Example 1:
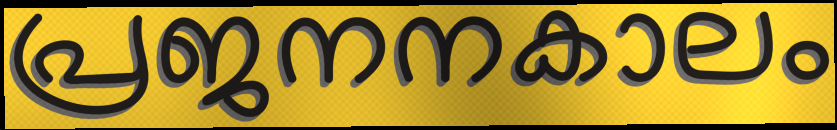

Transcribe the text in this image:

പ്രജനനകാലം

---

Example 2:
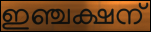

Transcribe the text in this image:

ഇഞ്ചക്ഷന്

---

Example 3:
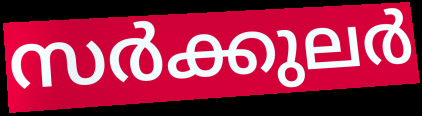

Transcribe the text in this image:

സർക്കുലർ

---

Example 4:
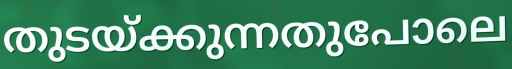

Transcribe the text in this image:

തുടയ്ക്കുന്നതുപോലെ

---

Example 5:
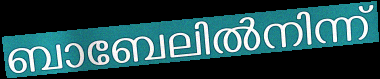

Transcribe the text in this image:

ബാബേലിൽനിന്ന്